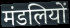
मंडलियों